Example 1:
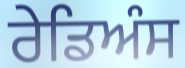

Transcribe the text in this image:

ਰੇਡਿਅੰਸ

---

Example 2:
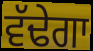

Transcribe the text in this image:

ਵੱਢੇਗਾ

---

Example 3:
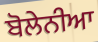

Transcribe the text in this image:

ਬੋਲੇਨੀਆ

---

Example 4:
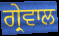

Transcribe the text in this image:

ਗ੍ਰੇਵਾਲ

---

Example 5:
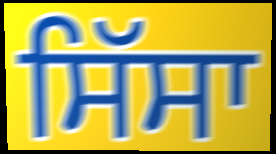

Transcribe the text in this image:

ਸਿੱਸਾ